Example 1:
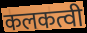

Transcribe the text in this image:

कलकत्वी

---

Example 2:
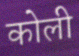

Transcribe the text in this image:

कोली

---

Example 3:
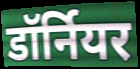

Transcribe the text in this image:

डॉर्नियर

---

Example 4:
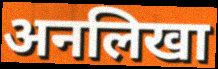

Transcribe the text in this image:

अनलिखा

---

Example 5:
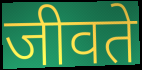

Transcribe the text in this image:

जीवते